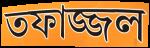
তফাজ্জল